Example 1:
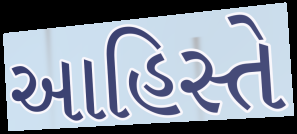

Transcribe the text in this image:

આહિસ્તે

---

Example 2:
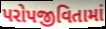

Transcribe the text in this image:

પરોપજીવિતામાં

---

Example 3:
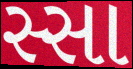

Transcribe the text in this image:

સ્સા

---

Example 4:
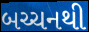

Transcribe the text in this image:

બચ્ચનથી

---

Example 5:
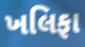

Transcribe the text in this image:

ખલિફા